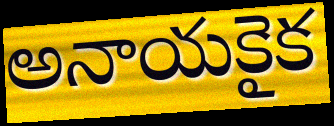
అనాయకైక